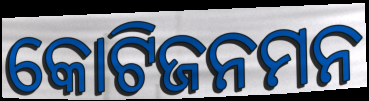
କୋଟିଜନମନ